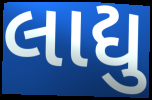
લાદ્યુ